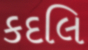
કદલિ